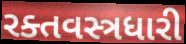
રક્તવસ્ત્રધારી